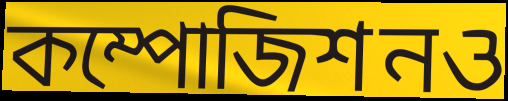
কম্পোজিশনও